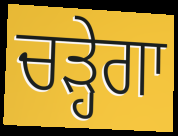
ਚੜ੍ਹੇਗਾ